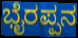
ಭೈರಪ್ಪನ